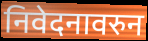
निवेदनावरुन